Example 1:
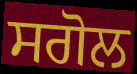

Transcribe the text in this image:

ਸਗੋਲ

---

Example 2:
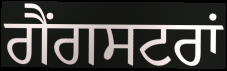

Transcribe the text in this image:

ਗੈਂਗਸਟਰਾਂ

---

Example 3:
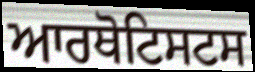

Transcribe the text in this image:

ਆਰਥੋਟਿਸਟਸ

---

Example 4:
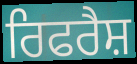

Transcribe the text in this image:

ਰਿਫਰੈਸ਼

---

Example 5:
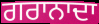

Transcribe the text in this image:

ਗਰਾਨਾਦਾ